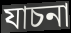
যাচনা